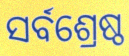
ସର୍ବଶ୍ରେଷ୍ଠ